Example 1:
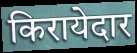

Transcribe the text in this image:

किरायेदार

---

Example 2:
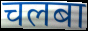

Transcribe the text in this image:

चलबा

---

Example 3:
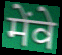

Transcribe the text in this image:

मेंवे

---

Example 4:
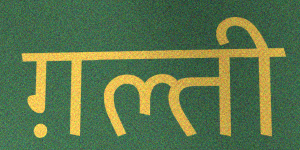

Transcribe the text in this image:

ग़ल्ती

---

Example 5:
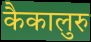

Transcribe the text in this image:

कैकालुरु